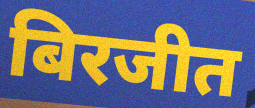
बिरजीत